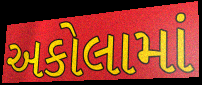
અકોલામાં